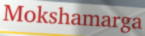
Mokshamarga